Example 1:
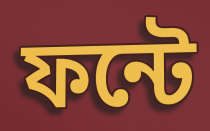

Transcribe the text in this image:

ফন্টে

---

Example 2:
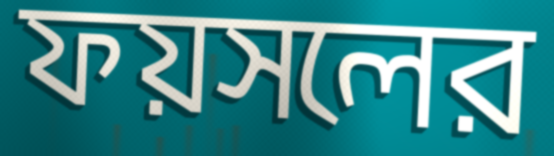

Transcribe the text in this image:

ফয়সলের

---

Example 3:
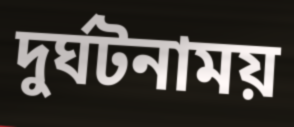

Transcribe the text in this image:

দুর্ঘটনাময়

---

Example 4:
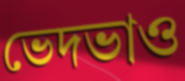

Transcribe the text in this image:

ভেদভাও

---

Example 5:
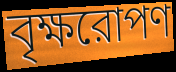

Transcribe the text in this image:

বৃক্ষরোপণ